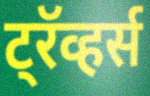
ट्रॅव्हर्स